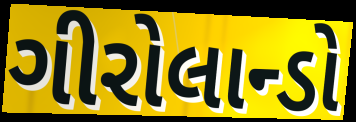
ગીરોલાન્ડો